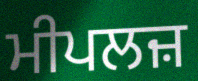
ਮੀਪਲਜ਼